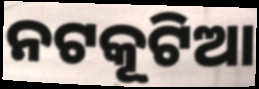
ନଟକୂଟିଆ